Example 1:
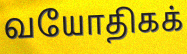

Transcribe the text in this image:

வயோதிகக்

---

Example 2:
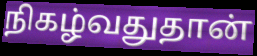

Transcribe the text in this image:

நிகழ்வதுதான்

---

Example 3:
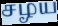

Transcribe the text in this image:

சழய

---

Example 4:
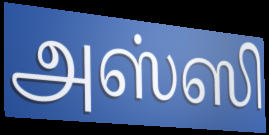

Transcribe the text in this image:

அஸ்ஸி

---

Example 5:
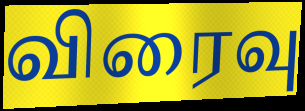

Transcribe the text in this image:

விரைவு